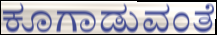
ಕೂಗಾಡುವಂತೆ